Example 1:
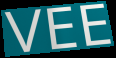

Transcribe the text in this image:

VEE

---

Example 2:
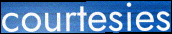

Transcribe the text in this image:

courtesies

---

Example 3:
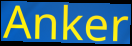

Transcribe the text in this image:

Anker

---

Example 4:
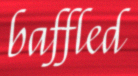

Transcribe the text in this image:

baffled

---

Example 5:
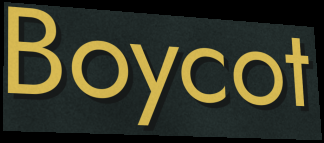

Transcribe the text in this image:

Boycot